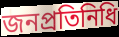
জনপ্রতিনিধি